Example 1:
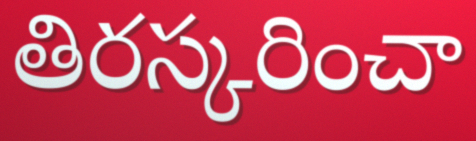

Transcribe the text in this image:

తిరస్కరించా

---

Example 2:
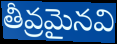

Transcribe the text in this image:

తీవ్రమైనవి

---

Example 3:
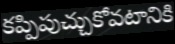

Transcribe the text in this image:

కప్పిపుచ్చుకోవటానికి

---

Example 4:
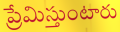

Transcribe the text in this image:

ప్రేమిస్తుంటారు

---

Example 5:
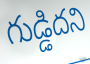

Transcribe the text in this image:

గుడ్డిదని